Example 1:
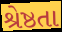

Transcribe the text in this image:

શ્રેષ્ઠતા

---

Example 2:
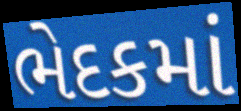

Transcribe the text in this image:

ભેદકમાં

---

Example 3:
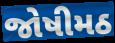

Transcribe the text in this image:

જોષીમઠ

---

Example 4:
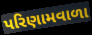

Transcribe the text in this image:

પરિણામવાળા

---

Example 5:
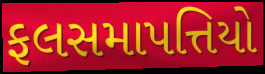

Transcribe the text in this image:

ફલસમાપત્તિયો